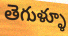
తెగుళ్ళూ